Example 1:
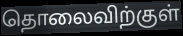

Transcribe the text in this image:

தொலைவிற்குள்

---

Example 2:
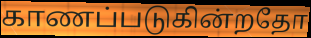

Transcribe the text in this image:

காணப்படுகின்றதோ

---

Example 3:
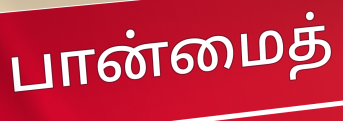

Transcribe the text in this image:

பான்மைத்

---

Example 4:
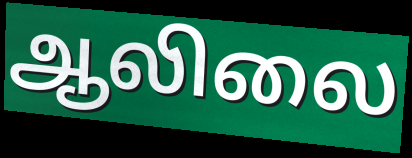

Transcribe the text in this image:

ஆலிலை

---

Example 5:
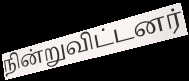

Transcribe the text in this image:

நின்றுவிட்டனர்